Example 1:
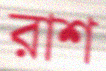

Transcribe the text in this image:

রাশ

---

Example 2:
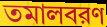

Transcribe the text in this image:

তমালবরণ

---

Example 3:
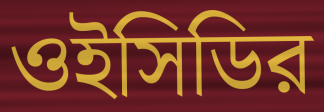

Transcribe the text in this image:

ওইসিডির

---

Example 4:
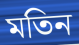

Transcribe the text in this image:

মতিন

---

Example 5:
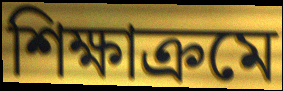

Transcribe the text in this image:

শিক্ষাক্রমে